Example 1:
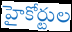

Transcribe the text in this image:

హైకోర్టుల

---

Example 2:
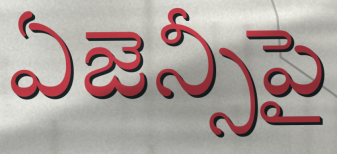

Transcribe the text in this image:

ఏజెన్సీపై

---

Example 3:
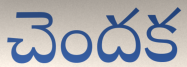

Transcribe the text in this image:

చెందక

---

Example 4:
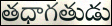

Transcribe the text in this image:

తధాగతుడు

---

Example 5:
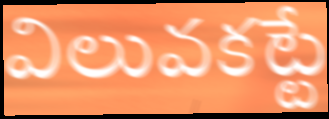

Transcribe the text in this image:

విలువకట్టే